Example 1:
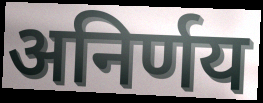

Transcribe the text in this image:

अनिर्णय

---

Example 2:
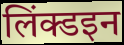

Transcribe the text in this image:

लिंक्डइन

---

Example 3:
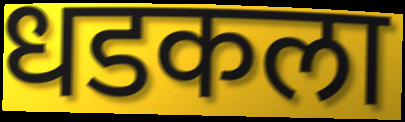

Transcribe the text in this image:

धडकला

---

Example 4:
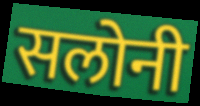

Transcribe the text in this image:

सलोनी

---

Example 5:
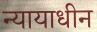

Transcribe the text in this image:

न्यायाधीन